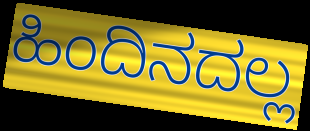
ಹಿಂದಿನದಲ್ಲ